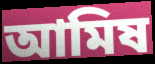
আমিষ